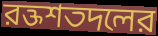
রক্তশতদলের